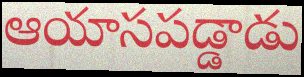
ఆయాసపడ్డాడు